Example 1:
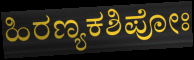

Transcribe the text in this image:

ಹಿರಣ್ಯಕಶಿಪೋಃ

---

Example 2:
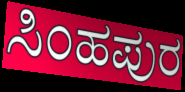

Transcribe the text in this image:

ಸಿಂಹಪುರ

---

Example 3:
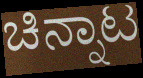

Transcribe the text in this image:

ಚಿನ್ನಾಟ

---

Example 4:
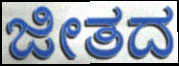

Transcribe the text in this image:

ಜೀತದ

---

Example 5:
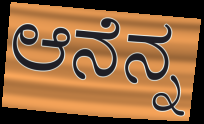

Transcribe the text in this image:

ಆನೆನ್ನ